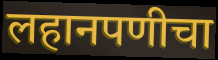
लहानपणीचा